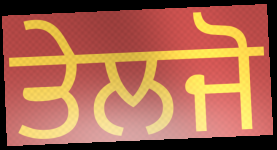
ਤੇਲਜੋ